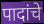
पादांचे